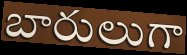
బారులుగా